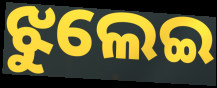
ଝୁଲେଇ